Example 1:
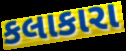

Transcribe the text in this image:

કલાકારા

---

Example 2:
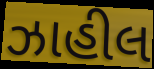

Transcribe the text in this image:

ઝાહીલ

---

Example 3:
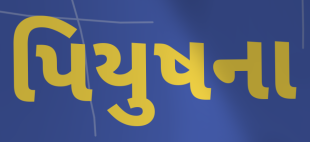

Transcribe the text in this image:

પિયુષના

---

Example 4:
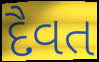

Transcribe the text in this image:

દૈવત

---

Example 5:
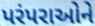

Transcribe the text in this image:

પરંપરાઓને